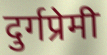
दुर्गप्रेमी